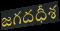
జగదధీశ